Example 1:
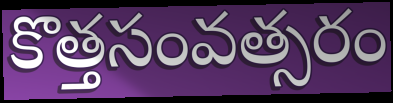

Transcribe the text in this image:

కొత్తసంవత్సరం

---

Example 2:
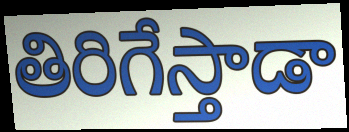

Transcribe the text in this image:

తిరిగేస్తాడా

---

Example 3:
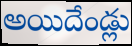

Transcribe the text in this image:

అయిదేండ్లు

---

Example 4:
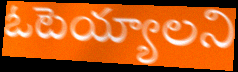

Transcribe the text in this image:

ఓటెయ్యాలని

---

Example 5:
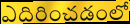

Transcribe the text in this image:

ఎదిరించడంలో